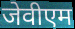
जेवीएम